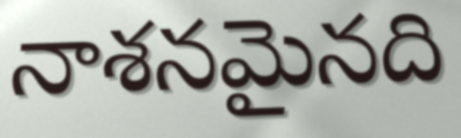
నాశనమైనది